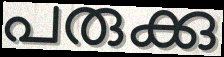
പരുക്കു